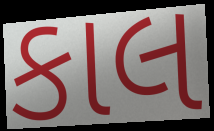
કાલ